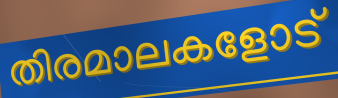
തിരമാലകളോട്